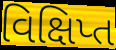
વિક્ષિપ્ત